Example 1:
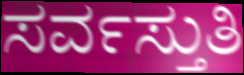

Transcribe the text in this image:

ಸರ್ವಸ್ತುತಿ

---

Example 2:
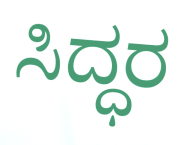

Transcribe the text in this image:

ಸಿದ್ಧರ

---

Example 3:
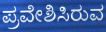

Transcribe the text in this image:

ಪ್ರವೇಶಿಸಿರುವ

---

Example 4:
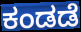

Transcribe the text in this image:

ಕಂಡಡೆ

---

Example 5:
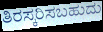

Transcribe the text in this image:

ತಿರಸ್ಕರಿಸಬಹುದು